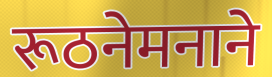
रूठनेमनाने